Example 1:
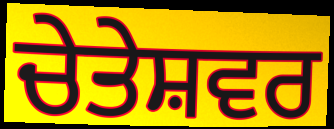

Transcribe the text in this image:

ਚੇਤੇਸ਼ਵਰ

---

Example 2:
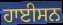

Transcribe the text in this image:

ਹਾਈਸਨ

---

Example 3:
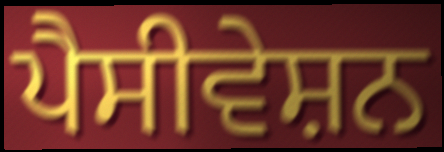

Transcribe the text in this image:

ਪੈਸੀਵੇਸ਼ਨ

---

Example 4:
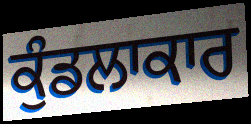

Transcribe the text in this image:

ਕੁੰਡਲਾਕਾਰ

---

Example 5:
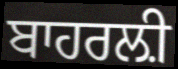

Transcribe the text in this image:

ਬਾਹਰਲ਼ੀ